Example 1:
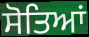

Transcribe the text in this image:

ਸੋਤਿਆਂ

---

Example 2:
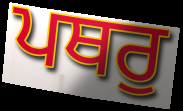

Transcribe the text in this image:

ਪਥਰੁ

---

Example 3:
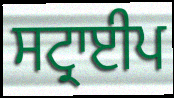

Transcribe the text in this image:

ਸਟ੍ਰਾਈਪ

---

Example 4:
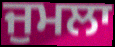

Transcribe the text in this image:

ਜੁਮਲਾ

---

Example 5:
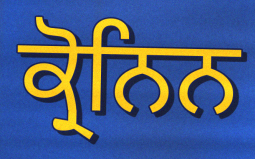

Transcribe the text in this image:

ਕ੍ਰੋਨਿਨ